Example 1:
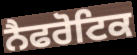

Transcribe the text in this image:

ਨੈਫਰੋਟਿਕ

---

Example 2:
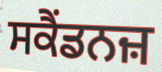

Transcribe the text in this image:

ਸਕੈਂਡਨਜ਼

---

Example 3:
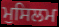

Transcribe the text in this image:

ਮੁਸਿਲਮ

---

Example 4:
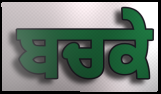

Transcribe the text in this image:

ਬਚਕੇ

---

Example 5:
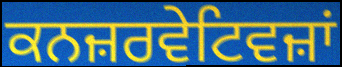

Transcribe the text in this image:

ਕਨਜ਼ਰਵੇਟਿਵਜ਼ਾਂ